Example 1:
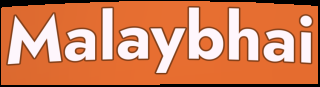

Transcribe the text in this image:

Malaybhai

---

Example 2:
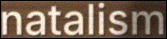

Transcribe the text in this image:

natalism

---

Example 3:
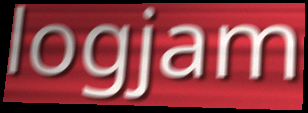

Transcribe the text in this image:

logjam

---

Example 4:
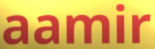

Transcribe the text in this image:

aamir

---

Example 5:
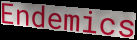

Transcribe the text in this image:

Endemics